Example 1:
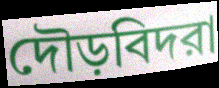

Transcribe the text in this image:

দৌড়বিদরা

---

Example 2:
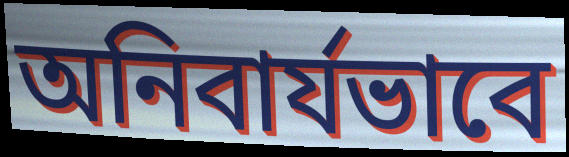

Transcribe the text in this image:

অনিবার্যভাবে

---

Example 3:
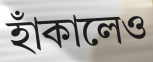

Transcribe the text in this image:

হাঁকালেও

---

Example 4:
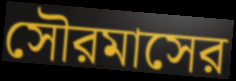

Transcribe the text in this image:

সৌরমাসের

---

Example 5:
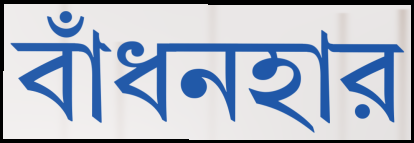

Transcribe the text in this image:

বাঁধনহার